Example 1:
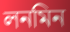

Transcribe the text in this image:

লনমিন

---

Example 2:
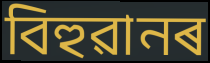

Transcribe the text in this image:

বিহুৱানৰ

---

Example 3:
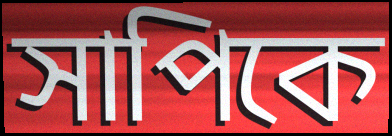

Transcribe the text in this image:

সাপিকে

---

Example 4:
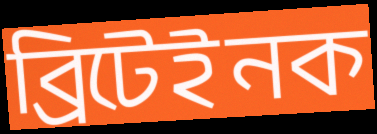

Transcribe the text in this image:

ব্ৰিটেইনক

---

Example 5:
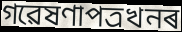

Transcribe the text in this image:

গৱেষণাপত্ৰখনৰ